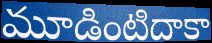
మూడింటిదాకా